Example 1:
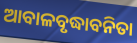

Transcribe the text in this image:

ଆବାଳବୃଦ୍ଧାବନିତା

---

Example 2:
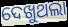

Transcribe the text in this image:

ଦେଖୁଥଲା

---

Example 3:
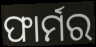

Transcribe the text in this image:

ଫାର୍ମର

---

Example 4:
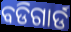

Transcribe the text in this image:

ବଡିଗାର୍ଡ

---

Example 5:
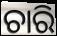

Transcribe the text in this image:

ଚାରି